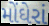
મોંઘેરાં